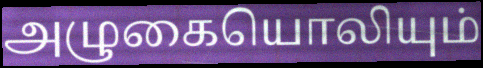
அழுகையொலியும்